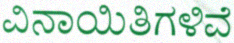
ವಿನಾಯಿತಿಗಳಿವೆ